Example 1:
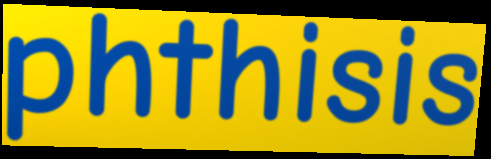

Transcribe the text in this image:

phthisis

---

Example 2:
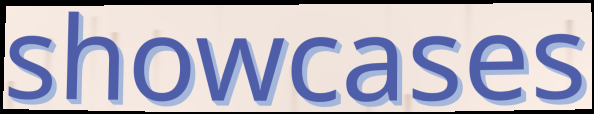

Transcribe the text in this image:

showcases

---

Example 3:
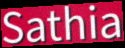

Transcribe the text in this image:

Sathia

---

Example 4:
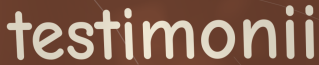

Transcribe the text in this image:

testimonii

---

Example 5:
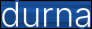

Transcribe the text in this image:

durna